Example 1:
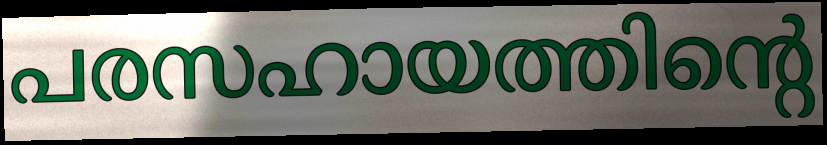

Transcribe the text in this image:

പരസഹായത്തിന്റെ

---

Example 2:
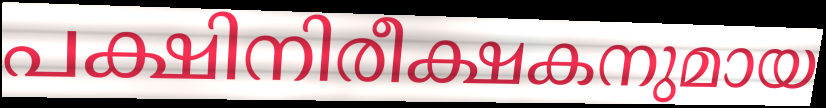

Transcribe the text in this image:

പക്ഷിനിരീക്ഷകനുമായ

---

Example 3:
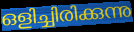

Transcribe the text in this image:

ഒളിച്ചിരിക്കുന്നു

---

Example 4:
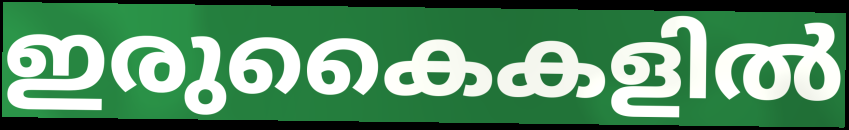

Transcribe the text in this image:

ഇരുകൈകളിൽ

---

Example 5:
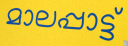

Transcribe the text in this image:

മാലപ്പാട്ട്